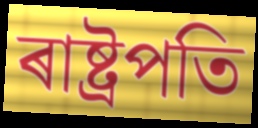
ৰাষ্ট্ৰপতি